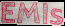
EMIs